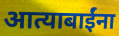
आत्याबाईंना